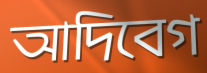
আদিবেগ